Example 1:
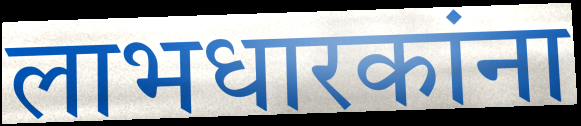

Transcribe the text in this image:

लाभधारकांना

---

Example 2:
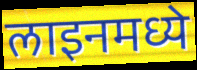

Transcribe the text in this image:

लाइनमध्ये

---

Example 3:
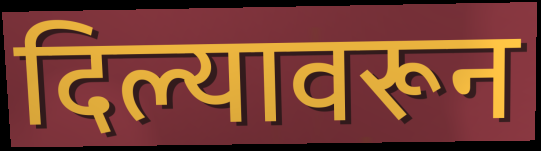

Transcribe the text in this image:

दिल्यावरून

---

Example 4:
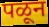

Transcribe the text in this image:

पळून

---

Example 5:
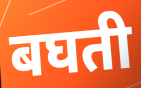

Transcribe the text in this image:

बघती